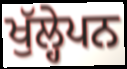
ਖੁੱਲ੍ਹੇਪਨ